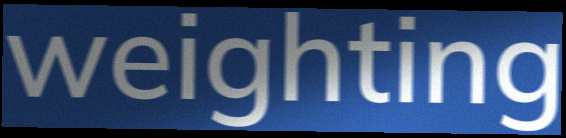
weighting